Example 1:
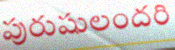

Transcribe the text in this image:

పురుషులందరి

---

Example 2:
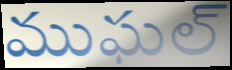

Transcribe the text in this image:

ముఘల్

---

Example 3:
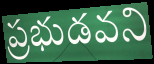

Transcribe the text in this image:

ప్రభుడవని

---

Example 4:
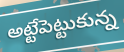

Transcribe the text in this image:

అట్టేపెట్టుకున్న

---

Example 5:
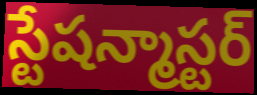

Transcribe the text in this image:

స్టేషన్మాస్టర్